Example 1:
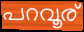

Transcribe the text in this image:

പറവൂര്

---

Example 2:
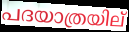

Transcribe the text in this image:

പദയാത്രയില്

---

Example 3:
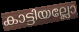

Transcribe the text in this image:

കാട്ടിയല്ലോ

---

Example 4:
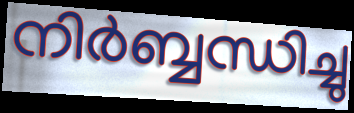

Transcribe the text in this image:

നിർബ്ബന്ധിച്ചു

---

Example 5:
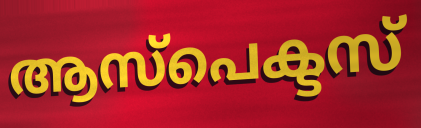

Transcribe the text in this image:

ആസ്പെക്ടസ്